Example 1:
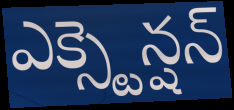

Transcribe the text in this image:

ఎక్స్టెన్షన్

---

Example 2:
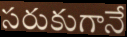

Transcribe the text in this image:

సరుకుగానే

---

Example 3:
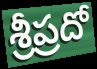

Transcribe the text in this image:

శ్రీప్రదో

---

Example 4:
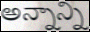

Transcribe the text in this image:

అన్నాన్ని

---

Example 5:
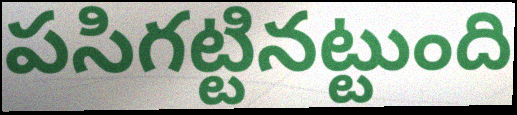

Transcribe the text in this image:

పసిగట్టినట్టుంది